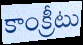
కాంక్రీటు